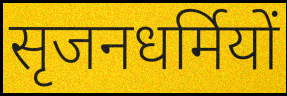
सृजनधर्मियों